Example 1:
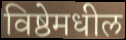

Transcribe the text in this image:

विष्ठेमधील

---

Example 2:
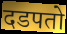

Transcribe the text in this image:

दडपतो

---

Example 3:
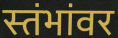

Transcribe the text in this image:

स्तंभांवर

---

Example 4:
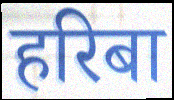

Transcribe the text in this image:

हरिबा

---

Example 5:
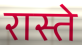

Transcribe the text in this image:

रास्ते